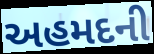
અહમદની